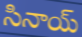
సినాయ్